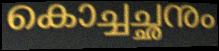
കൊച്ചച്ഛനും